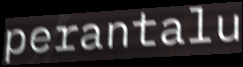
perantalu